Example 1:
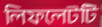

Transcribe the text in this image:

লিফলেটটি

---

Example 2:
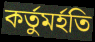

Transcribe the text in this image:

কর্তুমর্হতি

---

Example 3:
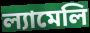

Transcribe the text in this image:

ল্যামেলি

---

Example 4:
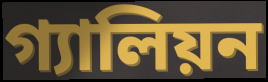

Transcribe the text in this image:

গ্যালিয়ন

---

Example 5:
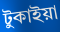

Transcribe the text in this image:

টুকাইয়া